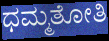
ಧಮ್ಮತೋತಿ